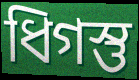
ধিগস্তু